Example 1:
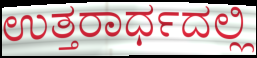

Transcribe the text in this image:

ಉತ್ತರಾರ್ಧದಲ್ಲಿ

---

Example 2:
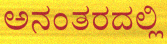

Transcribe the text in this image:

ಅನಂತರದಲ್ಲಿ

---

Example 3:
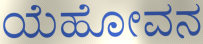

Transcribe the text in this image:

ಯೆಹೋವನ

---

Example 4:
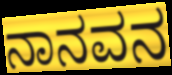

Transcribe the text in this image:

ನಾನವನ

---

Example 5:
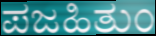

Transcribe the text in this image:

ಪಜಹಿತುಂ